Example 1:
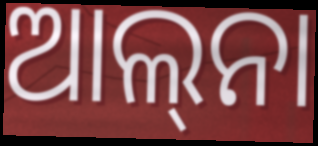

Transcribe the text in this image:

ଆଲ୍‍ନା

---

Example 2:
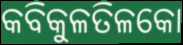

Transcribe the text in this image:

କବିକୁଳତିଳକୋ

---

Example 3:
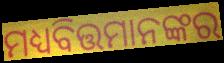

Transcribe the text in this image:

ମଧ୍ୟବିତ୍ତମାନଙ୍କର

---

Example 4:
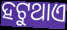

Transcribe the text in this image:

ହଟୁଥାଏ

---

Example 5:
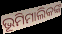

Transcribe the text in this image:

ଭୂମିମାଲିକଙ୍କ